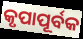
କୃପାପୂର୍ବକ